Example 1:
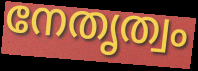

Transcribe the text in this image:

നേതൃത്വം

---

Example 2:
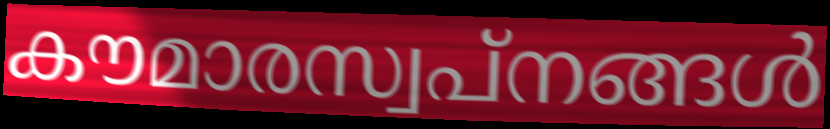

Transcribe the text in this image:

കൗമാരസ്വപ്നങ്ങൾ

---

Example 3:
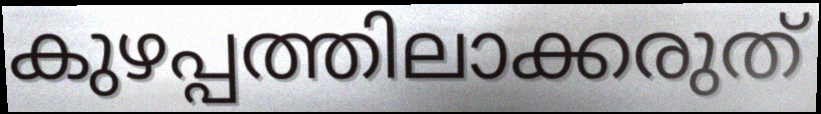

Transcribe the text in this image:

കുഴപ്പത്തിലാക്കരുത്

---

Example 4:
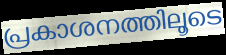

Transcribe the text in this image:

പ്രകാശനത്തിലൂടെ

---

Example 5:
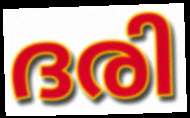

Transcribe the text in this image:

ദരി